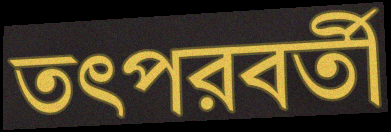
তৎপরবর্তী